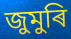
জুমুৰি